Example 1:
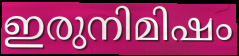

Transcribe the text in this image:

ഇരുനിമിഷം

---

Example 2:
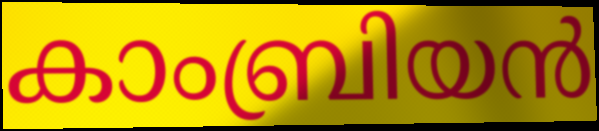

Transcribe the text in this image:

കാംബ്രിയൻ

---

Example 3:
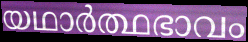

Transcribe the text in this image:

യഥാർത്ഥഭാവം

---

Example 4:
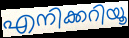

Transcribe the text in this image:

എനിക്കറിയൂ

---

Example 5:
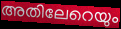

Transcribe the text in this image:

അതിലേറെയും